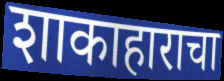
शाकाहाराचा